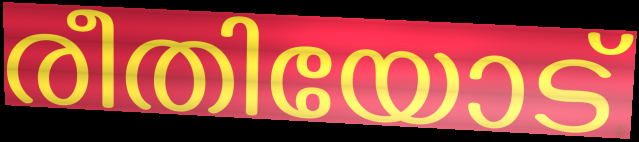
രീതിയോട്